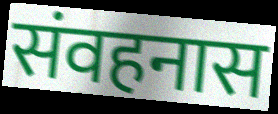
संवहनास